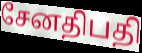
சேனதிபதி